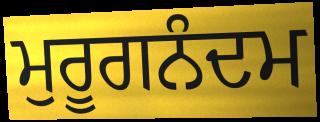
ਮੁਰੂਗਨੰਦਮ